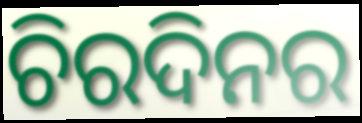
ଚିରଦିନର